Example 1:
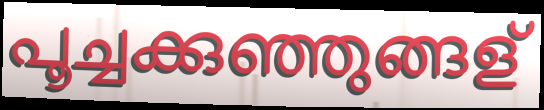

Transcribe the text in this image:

പൂച്ചക്കുഞ്ഞുങ്ങള്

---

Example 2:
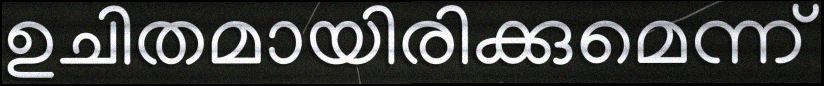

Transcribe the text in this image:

ഉചിതമായിരിക്കുമെന്ന്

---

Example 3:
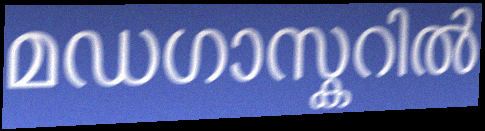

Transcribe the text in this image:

മഡഗാസ്കറിൽ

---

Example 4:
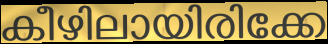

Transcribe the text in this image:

കീഴിലായിരിക്കേ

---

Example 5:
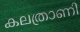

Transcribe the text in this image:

കലത്രാണി